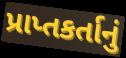
પ્રાપ્તકર્તાનું